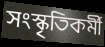
সংস্কৃতিকর্মী